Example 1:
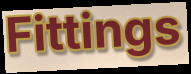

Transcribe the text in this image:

Fittings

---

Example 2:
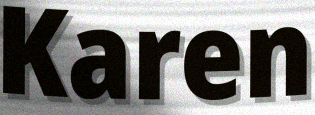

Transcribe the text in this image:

Karen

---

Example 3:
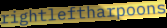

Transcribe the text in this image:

rightleftharpoons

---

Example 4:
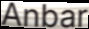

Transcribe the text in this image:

Anbar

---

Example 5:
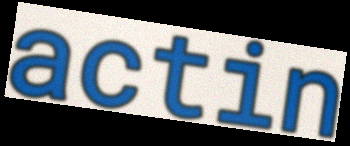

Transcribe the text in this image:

actin